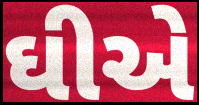
ઘીએ